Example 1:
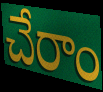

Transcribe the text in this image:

చేరాం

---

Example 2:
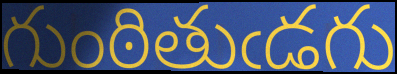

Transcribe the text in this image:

గుంఠితుఁడగు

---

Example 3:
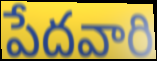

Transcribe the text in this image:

పేదవారి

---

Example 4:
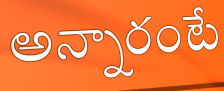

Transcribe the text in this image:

అన్నారంటే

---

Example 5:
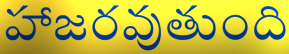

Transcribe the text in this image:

హాజరవుతుంది